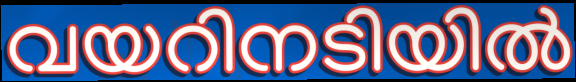
വയറിനടിയിൽ